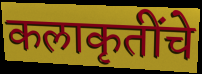
कलाकृतींचे